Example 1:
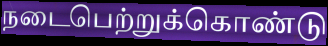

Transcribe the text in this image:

நடைபெற்றுக்கொண்டு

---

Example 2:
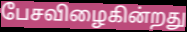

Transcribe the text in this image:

பேசவிழைகின்றது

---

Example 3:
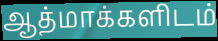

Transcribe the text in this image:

ஆத்மாக்களிடம்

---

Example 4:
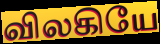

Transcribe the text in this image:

விலகியே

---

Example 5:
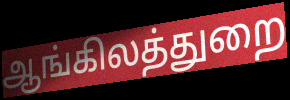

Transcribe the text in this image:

ஆங்கிலத்துறை